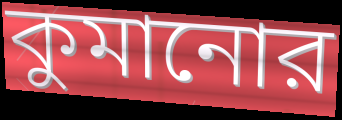
কুমানোর